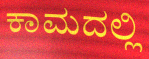
ಕಾಮದಲ್ಲಿ